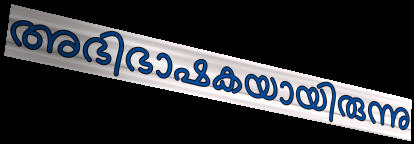
അഭിഭാഷകയായിരുന്നു